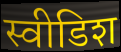
स्वीडिश